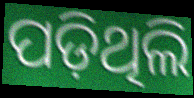
ପଡ଼ିଥିଲି